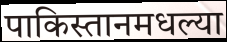
पाकिस्तानमधल्या